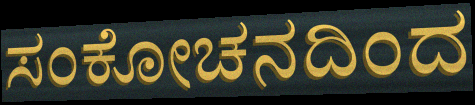
ಸಂಕೋಚನದಿಂದ